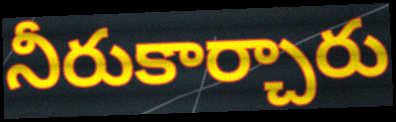
నీరుకార్చారు